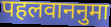
पहलवाननुमा